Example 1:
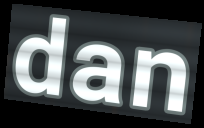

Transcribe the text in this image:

dan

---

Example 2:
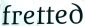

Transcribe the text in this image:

fretted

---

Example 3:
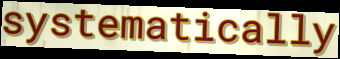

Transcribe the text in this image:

systematically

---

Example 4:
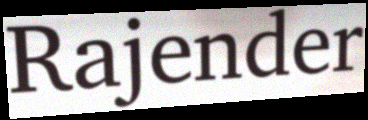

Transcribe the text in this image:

Rajender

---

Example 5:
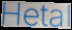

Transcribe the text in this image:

Hetal